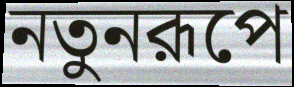
নতুনরূপে